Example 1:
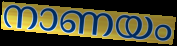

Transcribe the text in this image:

നാണയം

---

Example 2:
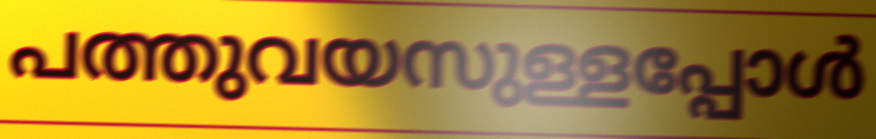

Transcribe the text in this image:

പത്തുവയസുള്ളപ്പോൾ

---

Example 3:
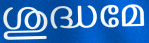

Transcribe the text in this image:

ശുദ്ധമേ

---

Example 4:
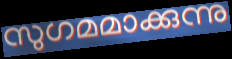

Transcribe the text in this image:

സുഗമമാക്കുന്നു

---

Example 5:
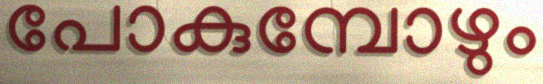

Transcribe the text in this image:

പോകുമ്പോഴും